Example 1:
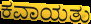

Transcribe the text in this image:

ಕವಾಯತು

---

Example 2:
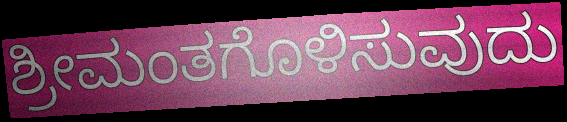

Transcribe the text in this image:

ಶ್ರೀಮಂತಗೊಳಿಸುವುದು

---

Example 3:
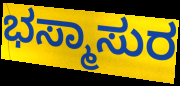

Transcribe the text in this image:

ಭಸ್ಮಾಸುರ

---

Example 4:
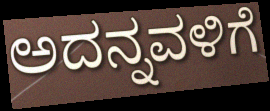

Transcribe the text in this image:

ಅದನ್ನವಳಿಗೆ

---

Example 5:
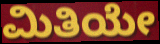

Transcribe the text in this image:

ಮಿತಿಯೇ